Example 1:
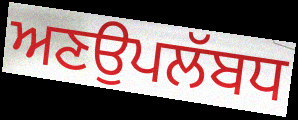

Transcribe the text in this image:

ਅਣਉਪਲੱਬਧ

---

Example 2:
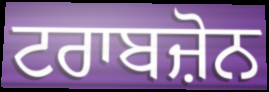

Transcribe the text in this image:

ਟਰਾਬਜ਼ੋਨ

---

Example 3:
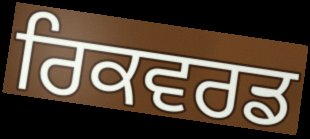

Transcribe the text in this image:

ਰਿਕਵਰਡ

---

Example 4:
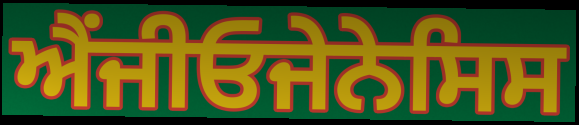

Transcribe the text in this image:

ਐਂਜੀਓਜੇਨੇਸਿਸ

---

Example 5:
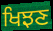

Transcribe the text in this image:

ਖਿਝਣ